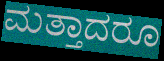
ಮತ್ತಾದರೂ